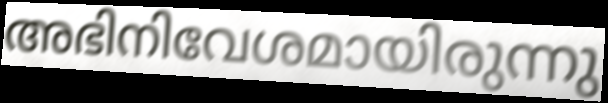
അഭിനിവേശമായിരുന്നു